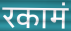
रकामं